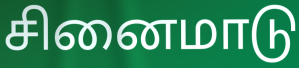
சினைமாடு